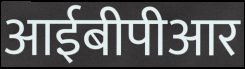
आईबीपीआर